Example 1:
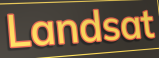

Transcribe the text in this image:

Landsat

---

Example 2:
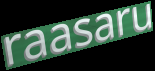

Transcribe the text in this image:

raasaru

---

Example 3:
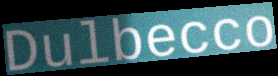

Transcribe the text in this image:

Dulbecco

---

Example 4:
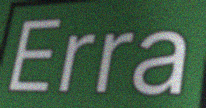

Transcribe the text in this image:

Erra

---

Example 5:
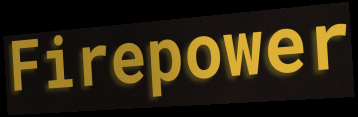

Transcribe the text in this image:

Firepower